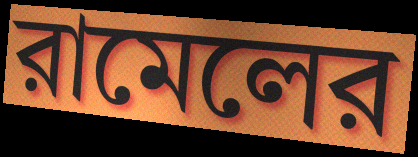
রামেলের